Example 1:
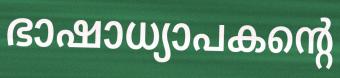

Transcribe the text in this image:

ഭാഷാധ്യാപകന്റെ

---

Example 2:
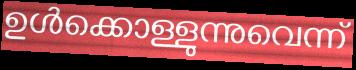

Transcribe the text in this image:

ഉൾക്കൊള്ളുന്നുവെന്ന്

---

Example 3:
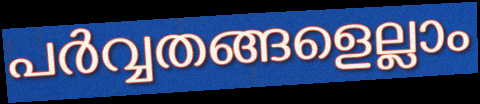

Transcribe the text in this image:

പർവ്വതങ്ങളെല്ലാം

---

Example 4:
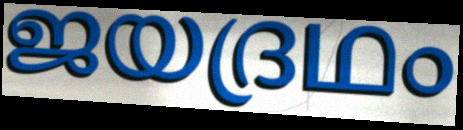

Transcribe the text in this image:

ജയദ്രഥം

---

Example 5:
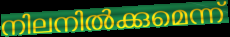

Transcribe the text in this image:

നിലനിൽക്കുമെന്ന്